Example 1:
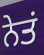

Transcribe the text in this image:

ਨੇਤਂ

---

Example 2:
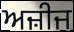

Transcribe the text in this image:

ਅਜ਼ੀਜ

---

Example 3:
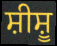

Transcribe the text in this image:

ਸ਼ੀਸ਼ੂ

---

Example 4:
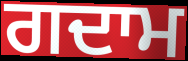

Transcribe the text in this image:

ਗਦਾਮ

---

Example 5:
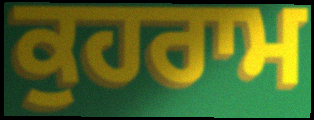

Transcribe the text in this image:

ਕੁਹਰਾਮ